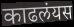
काढलंयस